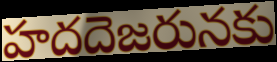
హదదెజరునకు